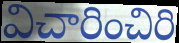
విచారించిరి